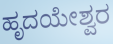
ಹೃದಯೇಶ್ವರ